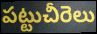
పట్టుచీరెలు